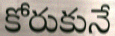
కోరుకునే